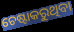
ଚେଷ୍ଟାକରୁଥିବା